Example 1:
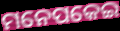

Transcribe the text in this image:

ମନେପକେଇ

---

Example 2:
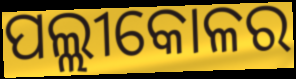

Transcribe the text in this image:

ପଲ୍ଲୀକୋଳର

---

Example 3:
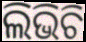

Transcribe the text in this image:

ଲିଭିଚି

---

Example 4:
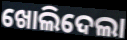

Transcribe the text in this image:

ଖୋଲିଦେଲା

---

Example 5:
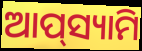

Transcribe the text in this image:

ଆପ୍‌ସ୍ୟାମି